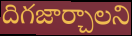
దిగజార్చాలని